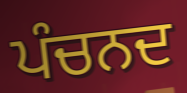
ਪੰਚਨਦ